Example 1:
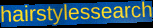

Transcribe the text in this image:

hairstylessearch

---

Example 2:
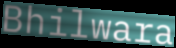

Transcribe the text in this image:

Bhilwara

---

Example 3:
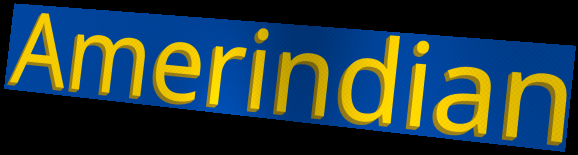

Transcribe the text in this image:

Amerindian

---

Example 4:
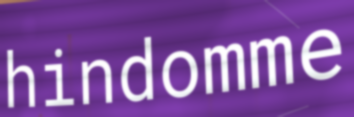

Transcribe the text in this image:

hindomme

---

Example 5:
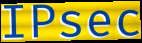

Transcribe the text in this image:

IPsec